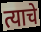
त्याचे